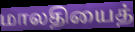
மாலதியைத்